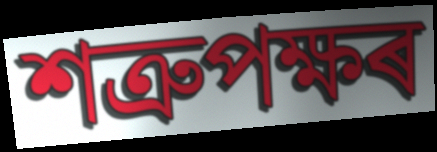
শত্ৰুপক্ষৰ